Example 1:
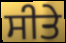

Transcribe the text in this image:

ਸੀਤੇ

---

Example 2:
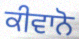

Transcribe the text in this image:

ਕੀਵਾਨੋ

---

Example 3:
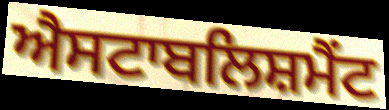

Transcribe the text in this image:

ਐਸਟਾਬਲਿਸ਼ਮੈਂਟ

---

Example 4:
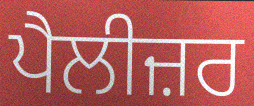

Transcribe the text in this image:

ਪੈਲੀਜ਼ਰ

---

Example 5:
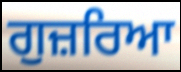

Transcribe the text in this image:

ਗੁਜ਼ਰਿਆ